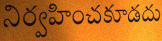
నిర్వహించకూడదు